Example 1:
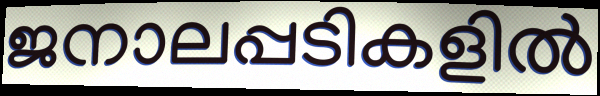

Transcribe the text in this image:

ജനാലപ്പടികളിൽ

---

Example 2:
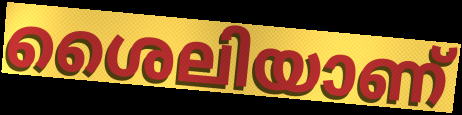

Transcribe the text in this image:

ശൈലിയാണ്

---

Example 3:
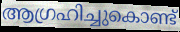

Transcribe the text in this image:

ആഗ്രഹിച്ചുകൊണ്ട്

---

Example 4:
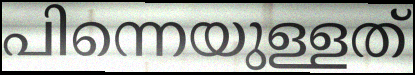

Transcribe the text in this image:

പിന്നെയുള്ളത്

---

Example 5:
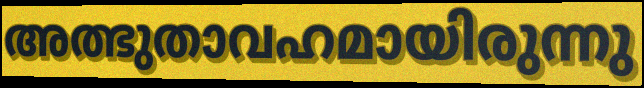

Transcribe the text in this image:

അത്ഭുതാവഹമായിരുന്നു